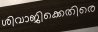
ശിവാജിക്കെതിരെ